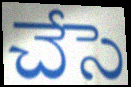
చేసె